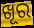
ଖୂର